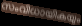
സംവിധായികയും